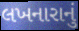
લખનારાનું